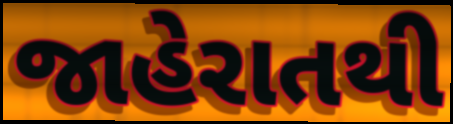
જાહેરાતથી